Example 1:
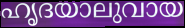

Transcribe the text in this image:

ഹൃദയാലുവായ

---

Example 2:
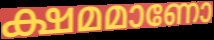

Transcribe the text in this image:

ക്ഷമമാണോ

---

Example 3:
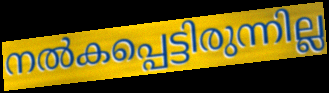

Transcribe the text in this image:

നൽകപ്പെട്ടിരുന്നില്ല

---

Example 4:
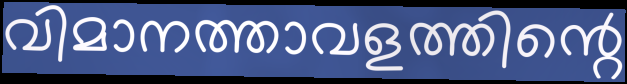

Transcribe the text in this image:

വിമാനത്താവളത്തിന്റെ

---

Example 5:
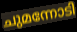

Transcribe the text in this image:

ചുമന്നോടി